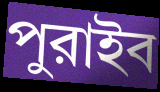
পুরাইব